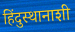
हिंदुस्थानाशी